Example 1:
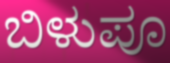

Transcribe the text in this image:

ಬಿಳುಪೂ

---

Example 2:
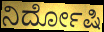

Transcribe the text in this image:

ನಿರ್ದೋಷಿ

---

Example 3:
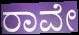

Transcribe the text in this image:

ರಾವೇ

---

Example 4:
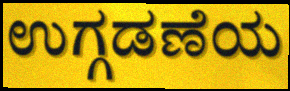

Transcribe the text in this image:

ಉಗ್ಗಡಣೆಯ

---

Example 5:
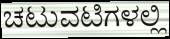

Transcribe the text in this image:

ಚಟುವಟಿಗಳಲ್ಲಿ